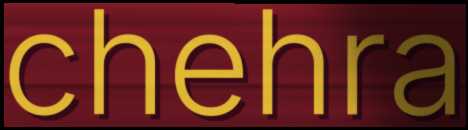
chehra